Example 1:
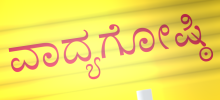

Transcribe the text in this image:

ವಾದ್ಯಗೋಷ್ಠಿ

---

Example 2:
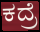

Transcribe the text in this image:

ಕದ್ರೆ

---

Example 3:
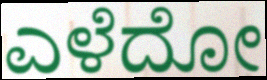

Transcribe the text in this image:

ಎಳೆದೋ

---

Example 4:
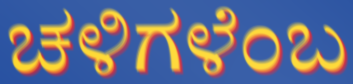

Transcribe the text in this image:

ಚಳಿಗಳೆಂಬ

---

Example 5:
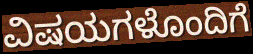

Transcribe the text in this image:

ವಿಷಯಗಳೊಂದಿಗೆ